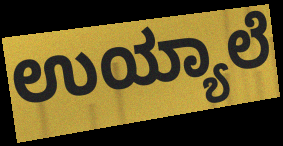
ಉಯ್ಯಾಲೆ